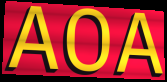
AOA